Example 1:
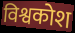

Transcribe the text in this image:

विश्वकोश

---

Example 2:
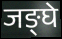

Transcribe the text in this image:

जङ्घे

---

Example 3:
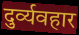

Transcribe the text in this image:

दुर्व्‍यवहार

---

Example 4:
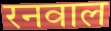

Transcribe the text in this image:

रनवाल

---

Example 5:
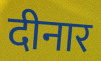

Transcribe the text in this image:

दीनार